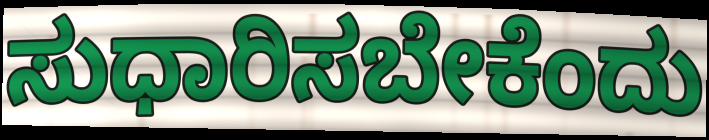
ಸುಧಾರಿಸಬೇಕೆಂದು